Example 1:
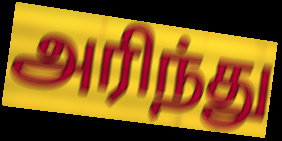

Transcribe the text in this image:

அரிந்து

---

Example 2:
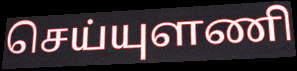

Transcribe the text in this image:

செய்யுளணி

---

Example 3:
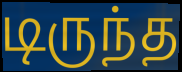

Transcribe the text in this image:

டிருந்த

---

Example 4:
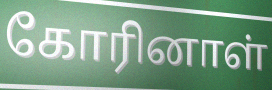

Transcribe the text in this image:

கோரினாள்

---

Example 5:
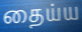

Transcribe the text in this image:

தைய்ய